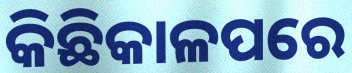
କିଛିକାଳପରେ